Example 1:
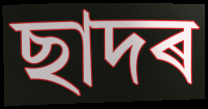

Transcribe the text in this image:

ছাদৰ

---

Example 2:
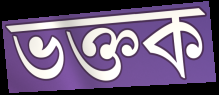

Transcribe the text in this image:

ভক্তক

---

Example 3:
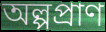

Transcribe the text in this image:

অল্পপ্ৰাণ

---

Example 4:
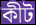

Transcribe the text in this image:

কীট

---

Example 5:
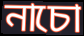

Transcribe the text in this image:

নাচো